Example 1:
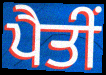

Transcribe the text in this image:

ਪੈਤੀਂ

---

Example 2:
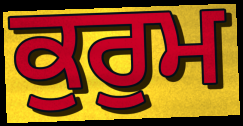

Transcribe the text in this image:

ਕੁਰੁਮ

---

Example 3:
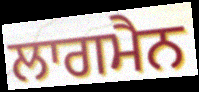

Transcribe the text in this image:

ਲਾਗਮੈਨ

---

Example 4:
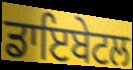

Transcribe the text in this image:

ਡਾਇਬੇਟਲ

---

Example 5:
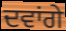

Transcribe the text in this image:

ਦਵਾਂਗੇ